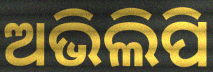
ଅଭିଲିପି